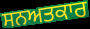
ਸਨਅਤਕਾਰ